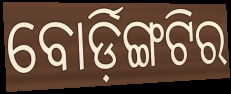
ବୋର୍ଡ଼ିଙ୍ଗଟିର